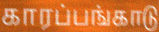
காரப்பங்காடு